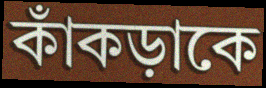
কাঁকড়াকে